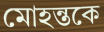
মোহন্তকে